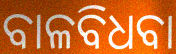
ବାଳବିଧବା